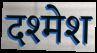
दश्मेश